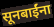
सूनबाईंना